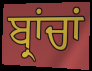
ਬ੍ਰਾਂਚਾਂ